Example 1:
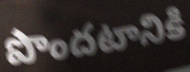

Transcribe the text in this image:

పొందటానికి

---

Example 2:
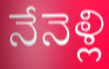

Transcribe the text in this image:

నేనెళ్లి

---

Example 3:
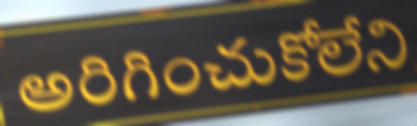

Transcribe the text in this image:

అరిగించుకోలేని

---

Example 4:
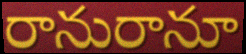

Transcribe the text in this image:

రానురానూ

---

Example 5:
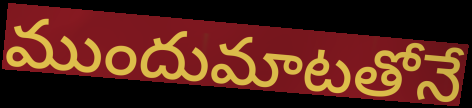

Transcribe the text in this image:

ముందుమాటతోనే